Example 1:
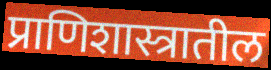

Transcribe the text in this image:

प्राणिशास्त्रातील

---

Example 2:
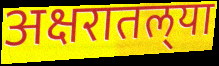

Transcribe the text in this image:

अक्षरातल्या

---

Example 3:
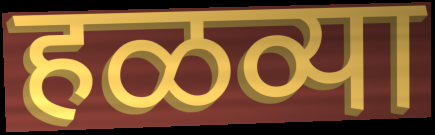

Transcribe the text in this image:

हळव्या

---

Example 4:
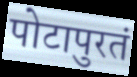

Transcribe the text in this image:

पोटापुरतं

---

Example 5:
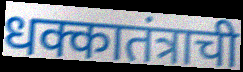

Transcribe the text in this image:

धक्कातंत्राची